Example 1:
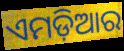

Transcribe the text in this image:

ଏମଡ଼ିଆର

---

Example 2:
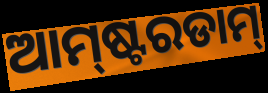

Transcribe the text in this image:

ଆମ୍‍ଷ୍ଟରଡାମ୍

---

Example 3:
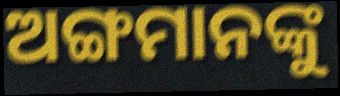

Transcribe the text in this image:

ଅଙ୍ଗମାନଙ୍କୁ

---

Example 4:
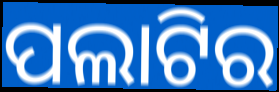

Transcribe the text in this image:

ପଲାଟିର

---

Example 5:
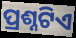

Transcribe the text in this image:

ପ୍ରଶ୍ନଟିଏ